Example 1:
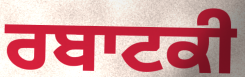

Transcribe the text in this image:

ਰਬਾਟਕੀ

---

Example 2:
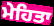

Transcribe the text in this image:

ਮੇਹਿਤਾ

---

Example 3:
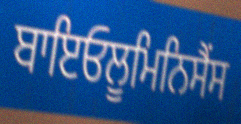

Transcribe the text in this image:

ਬਾਇਓਲੂਮਿਨਿਸੈਂਸ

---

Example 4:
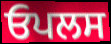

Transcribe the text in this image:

ਓਪਲਸ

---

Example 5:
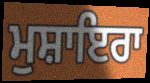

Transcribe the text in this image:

ਮੁਸ਼ਾਇਰਾ